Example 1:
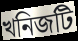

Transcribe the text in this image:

খনিজটি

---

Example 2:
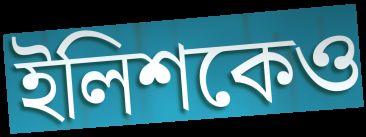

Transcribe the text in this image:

ইলিশকেও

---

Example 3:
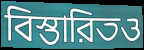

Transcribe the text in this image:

বিস্তারিতও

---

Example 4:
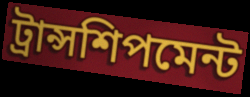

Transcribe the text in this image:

ট্রান্সশিপমেন্ট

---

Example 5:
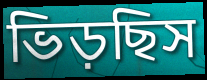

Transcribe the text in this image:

ভিড়ছিস